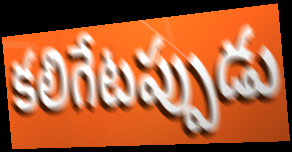
కలిగేటప్పుడు